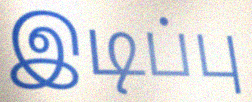
இடிப்பு